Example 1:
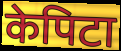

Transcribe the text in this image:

केपिटा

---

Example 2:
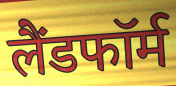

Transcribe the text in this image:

लैंडफॉर्म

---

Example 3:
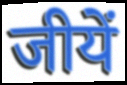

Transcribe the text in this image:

जीयें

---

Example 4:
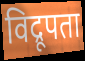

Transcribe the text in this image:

विद्रूपता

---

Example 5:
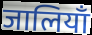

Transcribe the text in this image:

जालियाँ